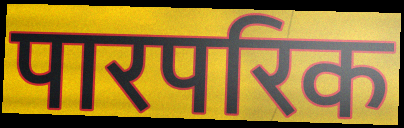
पारपरिक